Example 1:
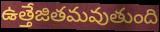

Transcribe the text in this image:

ఉత్తేజితమవుతుంది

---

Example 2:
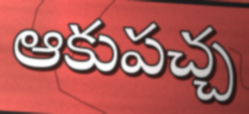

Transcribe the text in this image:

ఆకుపచ్చ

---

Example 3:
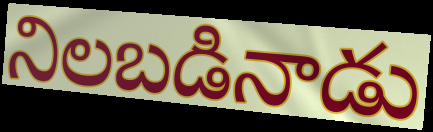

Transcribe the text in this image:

నిలబడినాడు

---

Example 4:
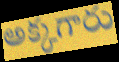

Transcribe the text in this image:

అక్కగారు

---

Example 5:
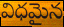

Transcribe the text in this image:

విధమైన